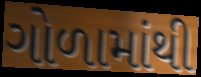
ગોળામાંથી